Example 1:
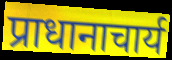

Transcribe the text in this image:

प्राधानाचार्य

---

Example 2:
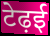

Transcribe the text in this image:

टेढ़ई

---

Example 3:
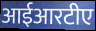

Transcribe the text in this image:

आईआरटीए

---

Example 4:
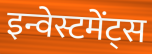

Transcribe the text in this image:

इन्वेस्टमेंट्स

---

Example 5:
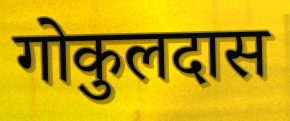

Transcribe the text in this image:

गोकुलदास